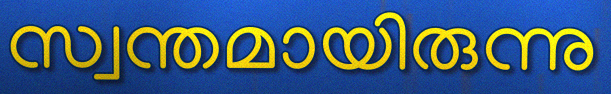
സ്വന്തമായിരുന്നു